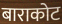
बाराकोट